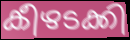
കീഴടക്കി